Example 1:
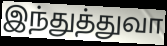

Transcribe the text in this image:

இந்துத்துவா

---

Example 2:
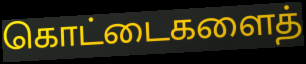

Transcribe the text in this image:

கொட்டைகளைத்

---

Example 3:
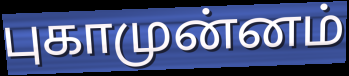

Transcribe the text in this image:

புகாமுன்னம்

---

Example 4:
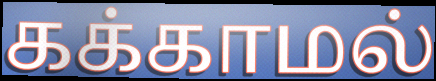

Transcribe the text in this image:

கக்காமல்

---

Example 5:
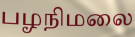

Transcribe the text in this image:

பழநிமலை